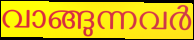
വാങ്ങുന്നവർ